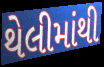
થેલીમાંથી